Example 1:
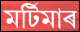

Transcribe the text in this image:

মৰ্টিমাৰ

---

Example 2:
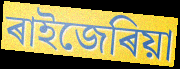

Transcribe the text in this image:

ৰাইজেৰিয়া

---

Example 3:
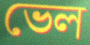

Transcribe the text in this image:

ভেল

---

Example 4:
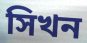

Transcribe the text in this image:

সিখন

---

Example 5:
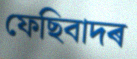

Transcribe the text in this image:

ফেছিবাদৰ